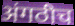
अंगठीच